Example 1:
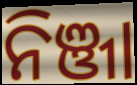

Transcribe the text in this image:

ନିଞ୍ଜା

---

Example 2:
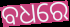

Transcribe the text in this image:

ବଧରେ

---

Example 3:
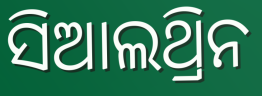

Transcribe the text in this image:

ସିଆଲଥ୍ରିନ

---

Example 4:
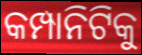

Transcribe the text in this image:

କମ୍ପାନିଟିକୁ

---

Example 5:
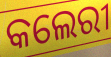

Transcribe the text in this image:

କଲେରୀ